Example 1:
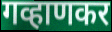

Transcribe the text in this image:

गव्हाणकर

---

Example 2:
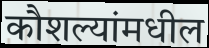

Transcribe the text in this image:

कौशल्यांमधील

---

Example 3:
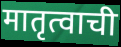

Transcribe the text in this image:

मातृत्वाची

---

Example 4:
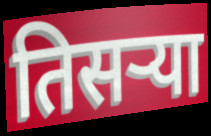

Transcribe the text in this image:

तिसऱ्या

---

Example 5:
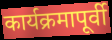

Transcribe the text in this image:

कार्यक्रमापूर्वी